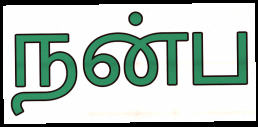
நன்ப